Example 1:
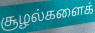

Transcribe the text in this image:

சூழல்களைக்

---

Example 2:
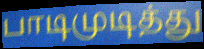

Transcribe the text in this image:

பாடிமுடித்து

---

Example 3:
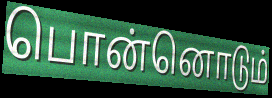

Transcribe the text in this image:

பொன்னொடும்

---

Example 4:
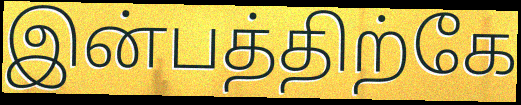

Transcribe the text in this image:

இன்பத்திற்கே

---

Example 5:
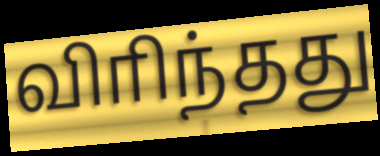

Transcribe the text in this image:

விரிந்தது